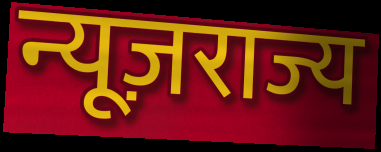
न्यूज़राज्य